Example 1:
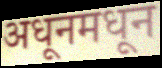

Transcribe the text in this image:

अधूनमधून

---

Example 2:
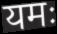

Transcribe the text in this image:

यमः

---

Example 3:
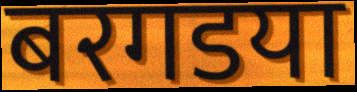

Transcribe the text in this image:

बरगडया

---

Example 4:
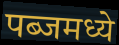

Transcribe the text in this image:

पब्जमध्ये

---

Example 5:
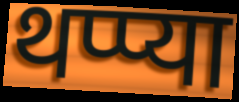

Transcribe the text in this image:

थप्प्या